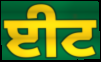
ਈਟ